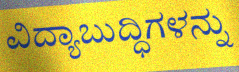
ವಿದ್ಯಾಬುದ್ಧಿಗಳನ್ನು